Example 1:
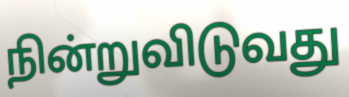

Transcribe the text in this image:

நின்றுவிடுவது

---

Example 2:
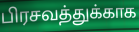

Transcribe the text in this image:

பிரசவத்துக்காக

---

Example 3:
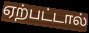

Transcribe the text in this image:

ஏற்பட்டால்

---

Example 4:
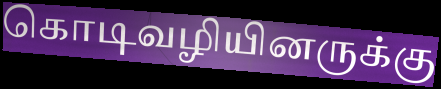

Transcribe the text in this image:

கொடிவழியினருக்கு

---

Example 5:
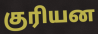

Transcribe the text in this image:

குரியன